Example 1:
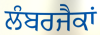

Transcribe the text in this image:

ਲੰਬਰਜੈਕਾਂ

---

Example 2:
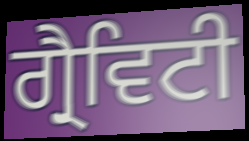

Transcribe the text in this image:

ਗ੍ਰੈਵਿਟੀ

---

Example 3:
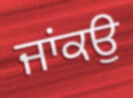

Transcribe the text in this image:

ਜਾਂਕਉ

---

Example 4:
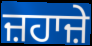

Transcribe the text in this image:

ਜ਼ਹਾਜ਼ੇ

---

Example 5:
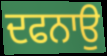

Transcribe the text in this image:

ਦਫਨਾਉ